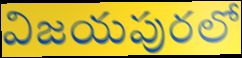
విజయపురలో